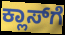
ಕ್ಲಾಸ್‌ಗೆ